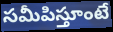
సమీపిస్తూంటే